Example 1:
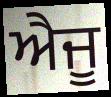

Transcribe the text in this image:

ਐਜੂ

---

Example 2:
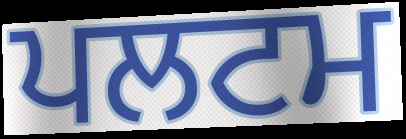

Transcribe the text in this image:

ਪਲਟਮ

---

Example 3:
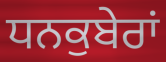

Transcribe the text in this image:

ਧਨਕੁਬੇਰਾਂ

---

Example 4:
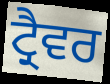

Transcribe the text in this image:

ਟ੍ਰੈਵਰ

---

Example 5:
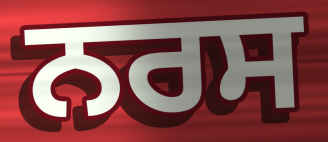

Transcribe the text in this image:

ਨਰਸ